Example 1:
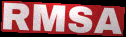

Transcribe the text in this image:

RMSA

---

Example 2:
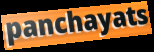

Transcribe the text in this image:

panchayats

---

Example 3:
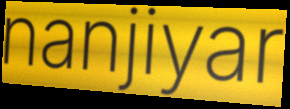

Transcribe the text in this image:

nanjiyar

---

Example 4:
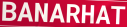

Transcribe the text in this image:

BANARHAT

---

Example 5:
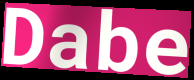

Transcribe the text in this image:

Dabe